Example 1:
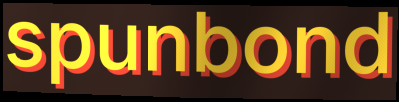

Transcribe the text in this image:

spunbond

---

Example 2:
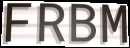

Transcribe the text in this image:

FRBM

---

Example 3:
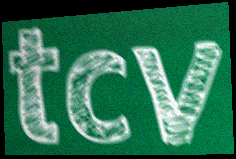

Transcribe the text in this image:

tcv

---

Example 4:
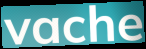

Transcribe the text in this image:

vache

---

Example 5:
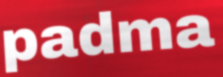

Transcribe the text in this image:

padma